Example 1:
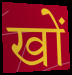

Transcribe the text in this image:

खों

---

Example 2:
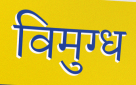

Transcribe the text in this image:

विमुग्ध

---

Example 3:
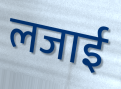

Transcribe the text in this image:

लजाई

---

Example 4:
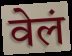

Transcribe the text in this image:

वेलं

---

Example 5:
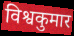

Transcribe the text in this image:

विश्वकुमार